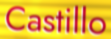
Castillo